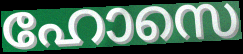
ഹോസെ